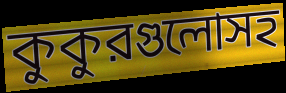
কুকুরগুলোসহ